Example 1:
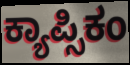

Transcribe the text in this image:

ಕ್ಯಾಪ್ಸಿಕಂ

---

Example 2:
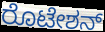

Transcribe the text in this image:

ರೊಟೇಶನ್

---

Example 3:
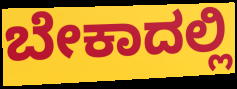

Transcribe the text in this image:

ಬೇಕಾದಲ್ಲಿ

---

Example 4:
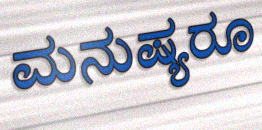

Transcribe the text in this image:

ಮನುಷ್ಯರೂ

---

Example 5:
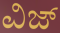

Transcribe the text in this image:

ವಿಜ್